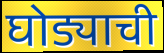
घोड्याची